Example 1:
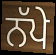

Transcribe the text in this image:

ਨੱਪੇ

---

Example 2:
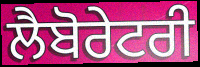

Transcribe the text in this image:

ਲੈਬੋਰੇਟਰੀ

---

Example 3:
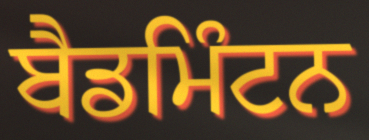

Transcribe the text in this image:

ਬੈਡਮਿੰਟਨ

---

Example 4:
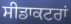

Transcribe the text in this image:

ਸੀਡਾਕਟਰਾਂ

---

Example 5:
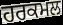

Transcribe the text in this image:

ਹਰਕਮਲ